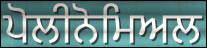
ਪੋਲੀਨੋਮਿਅਲ